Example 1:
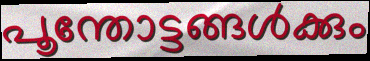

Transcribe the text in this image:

പൂന്തോട്ടങ്ങൾക്കും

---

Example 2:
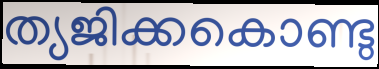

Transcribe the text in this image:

ത്യജിക്കകൊണ്ടു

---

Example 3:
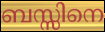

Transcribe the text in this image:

ബസ്സിനെ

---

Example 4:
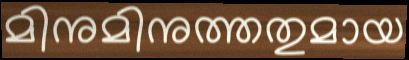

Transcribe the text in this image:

മിനുമിനുത്തതുമായ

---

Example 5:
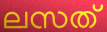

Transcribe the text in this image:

ലസത്